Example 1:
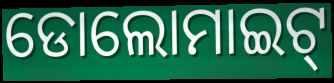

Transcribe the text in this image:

ଡୋଲୋମାଇଟ୍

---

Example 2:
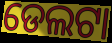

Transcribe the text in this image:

ଡେଲଟା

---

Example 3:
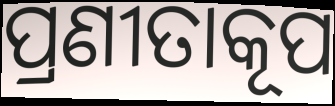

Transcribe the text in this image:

ପ୍ରଣୀତାକୂପ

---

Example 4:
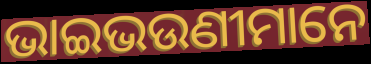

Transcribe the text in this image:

ଭାଇଭଉଣୀମାନେ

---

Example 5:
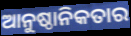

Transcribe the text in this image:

ଆନୁଷ୍ଠାନିକତାର